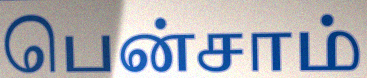
பென்சாம்